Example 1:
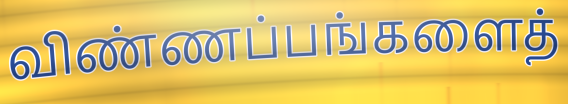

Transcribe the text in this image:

விண்ணப்பங்களைத்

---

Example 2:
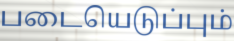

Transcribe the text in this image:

படையெடுப்பும்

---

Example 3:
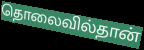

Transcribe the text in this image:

தொலைவில்தான்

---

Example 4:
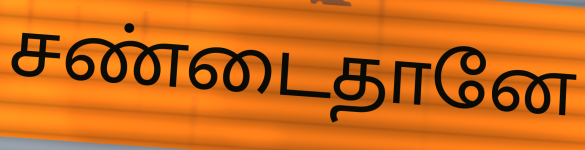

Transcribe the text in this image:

சண்டைதானே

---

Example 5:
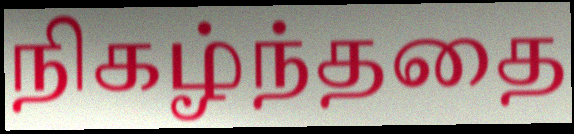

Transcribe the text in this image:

நிகழ்ந்ததை